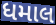
ધમાલ